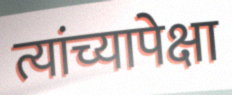
त्यांच्यापेक्षा